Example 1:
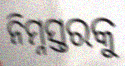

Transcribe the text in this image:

ନିମ୍ନସ୍ତରକୁ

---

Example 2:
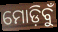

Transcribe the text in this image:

ମୋଡ଼ିବୁଁ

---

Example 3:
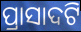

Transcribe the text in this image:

ପ୍ରାସାଦଟି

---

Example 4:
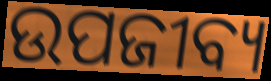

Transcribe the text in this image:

ଉପଜୀବ୍ୟ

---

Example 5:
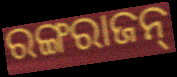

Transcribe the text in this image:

ରଙ୍ଗରାଜନ୍